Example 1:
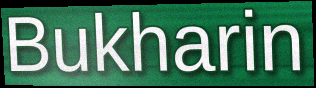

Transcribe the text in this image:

Bukharin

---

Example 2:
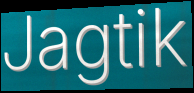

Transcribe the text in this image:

Jagtik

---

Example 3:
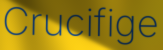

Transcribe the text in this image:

Crucifige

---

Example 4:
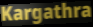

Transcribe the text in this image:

Kargathra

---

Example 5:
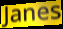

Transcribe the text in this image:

Janes